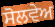
ਸੋਲਵੇਅ